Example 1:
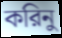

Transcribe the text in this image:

করিনু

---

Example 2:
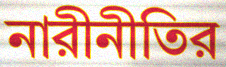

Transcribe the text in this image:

নারীনীতির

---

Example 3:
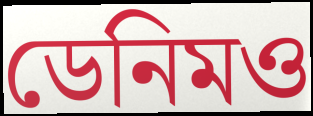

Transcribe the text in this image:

ডেনিমও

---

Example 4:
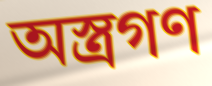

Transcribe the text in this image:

অস্ত্রগণ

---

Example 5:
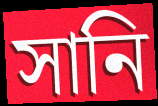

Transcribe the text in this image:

সানি